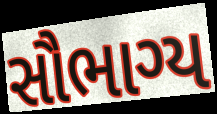
સૌભાગ્ય